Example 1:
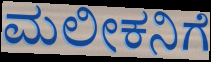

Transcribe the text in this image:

ಮಲೀಕನಿಗೆ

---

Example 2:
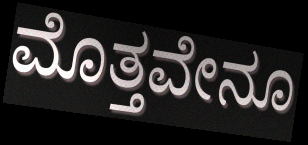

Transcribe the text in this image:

ಮೊತ್ತವೇನೂ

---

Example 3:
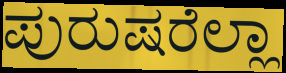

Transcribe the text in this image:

ಪುರುಷರೆಲ್ಲಾ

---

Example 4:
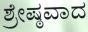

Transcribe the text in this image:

ಶ್ರೇಷ್ಠವಾದ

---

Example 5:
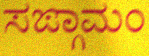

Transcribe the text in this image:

ಸಙ್ಗಾಮಂ